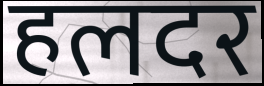
हलदर